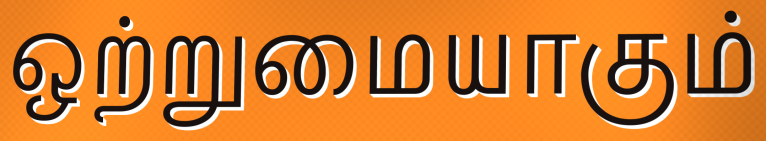
ஒற்றுமையாகும்